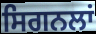
ਸਿਗਨਲਾਂ